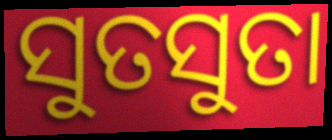
ସୁତସୁତା